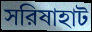
সরিষাহাট